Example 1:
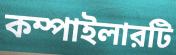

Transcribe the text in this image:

কম্পাইলারটি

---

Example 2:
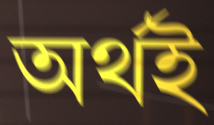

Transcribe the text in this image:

অর্থই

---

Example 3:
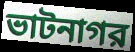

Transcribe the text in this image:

ভাটনাগর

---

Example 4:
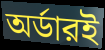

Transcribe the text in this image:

অর্ডারই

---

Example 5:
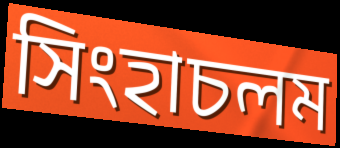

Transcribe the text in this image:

সিংহাচলম